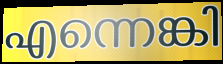
എന്നെങ്കി